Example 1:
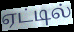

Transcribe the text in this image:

ஏட்டில்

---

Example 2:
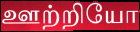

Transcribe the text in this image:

ஊற்றியோ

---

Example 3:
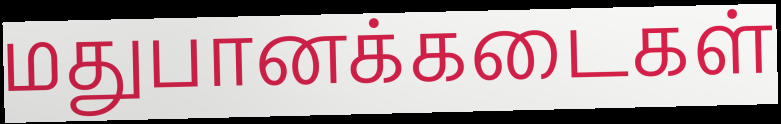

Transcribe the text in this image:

மதுபானக்கடைகள்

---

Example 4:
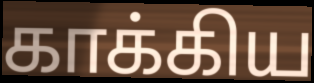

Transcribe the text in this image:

காக்கிய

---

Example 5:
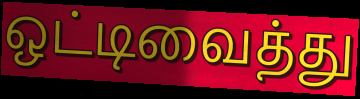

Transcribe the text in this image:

ஒட்டிவைத்து